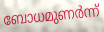
ബോധമുണർന്ന്